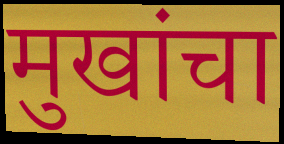
मुखांचा